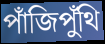
পাঁজিপুঁথি